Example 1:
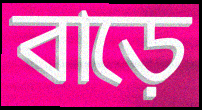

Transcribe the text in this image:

বাড়ে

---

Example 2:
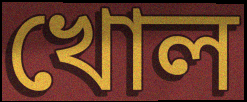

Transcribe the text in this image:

খোল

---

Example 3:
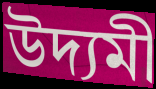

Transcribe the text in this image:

উদ্যমী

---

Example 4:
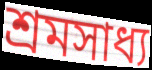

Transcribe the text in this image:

শ্ৰমসাধ্য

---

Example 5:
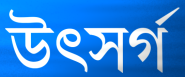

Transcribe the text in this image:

উৎসৰ্গ